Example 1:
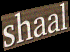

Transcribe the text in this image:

shaal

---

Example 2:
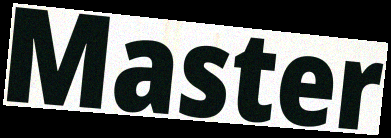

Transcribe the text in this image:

Master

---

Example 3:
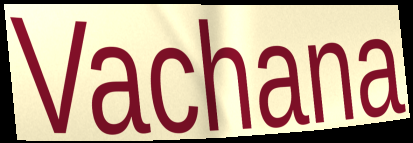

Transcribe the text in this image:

Vachana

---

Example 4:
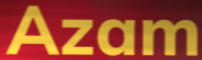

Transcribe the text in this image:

Azam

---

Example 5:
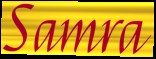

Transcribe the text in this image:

Samra